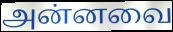
அன்னவை